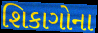
શિકાગોના